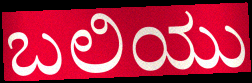
ಬಲಿಯು